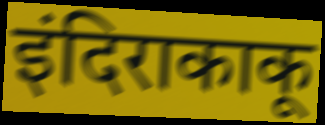
इंदिराकाकू